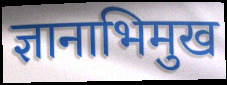
ज्ञानाभिमुख